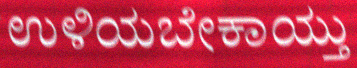
ಉಳಿಯಬೇಕಾಯ್ತು